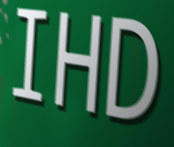
IHD